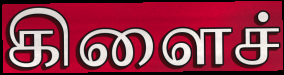
கிளைச்